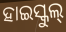
ହାଇସ୍କୁଲ୍